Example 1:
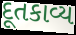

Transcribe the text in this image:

દૂતકાવ્ય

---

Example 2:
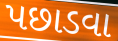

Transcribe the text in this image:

પછાડવા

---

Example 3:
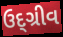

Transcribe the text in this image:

ઉદ્ગ્રીવ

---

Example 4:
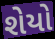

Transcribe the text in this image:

શેયો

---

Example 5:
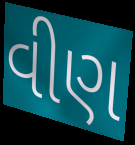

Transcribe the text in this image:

વીણ